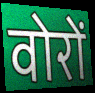
वोरों